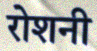
रोशनी